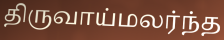
திருவாய்மலர்ந்த